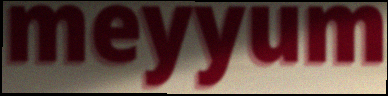
meyyum